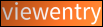
viewentry